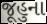
જૂહુના